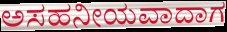
ಅಸಹನೀಯವಾದಾಗ